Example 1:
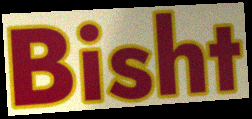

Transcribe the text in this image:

Bisht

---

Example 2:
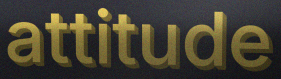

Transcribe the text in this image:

attitude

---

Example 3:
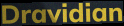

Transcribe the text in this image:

Dravidian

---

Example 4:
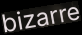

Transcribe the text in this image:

bizarre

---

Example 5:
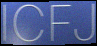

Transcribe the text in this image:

ICFJ